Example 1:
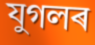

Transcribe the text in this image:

যুগলৰ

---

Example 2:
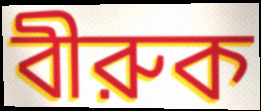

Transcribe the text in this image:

বীৰুক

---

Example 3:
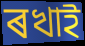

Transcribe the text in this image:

ৰখাই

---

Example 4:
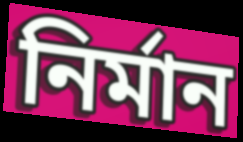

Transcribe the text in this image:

নিৰ্মান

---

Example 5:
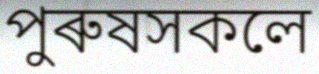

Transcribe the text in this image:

পুৰুষসকলে